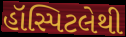
હૉસ્પિટલેથી